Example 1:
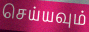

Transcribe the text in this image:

செய்யவும்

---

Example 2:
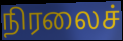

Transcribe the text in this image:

நிரலைச்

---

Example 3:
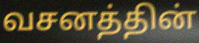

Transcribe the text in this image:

வசனத்தின்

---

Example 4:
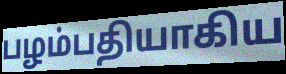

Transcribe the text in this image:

பழம்பதியாகிய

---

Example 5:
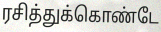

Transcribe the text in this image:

ரசித்துக்கொண்டே